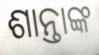
ଶାନ୍ତାଙ୍କ